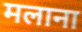
मलाना